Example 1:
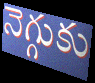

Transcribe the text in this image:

నెగ్గుకు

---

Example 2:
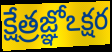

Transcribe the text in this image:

క్షేత్రజ్ఞోఽక్షర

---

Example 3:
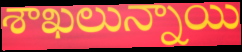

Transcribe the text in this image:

శాఖలున్నాయి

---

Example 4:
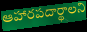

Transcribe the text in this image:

ఆహారపదార్థాలని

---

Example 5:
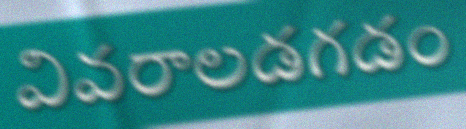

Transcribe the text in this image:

వివరాలడగడం